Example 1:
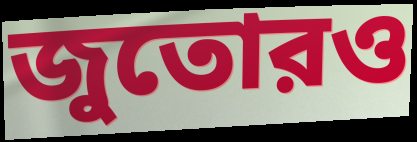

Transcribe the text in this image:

জুতোরও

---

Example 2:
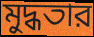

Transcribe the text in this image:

মুদ্ধতার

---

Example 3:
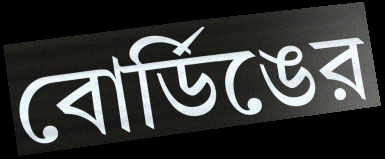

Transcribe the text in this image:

বোর্ডিঙের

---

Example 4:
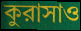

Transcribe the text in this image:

কুরাসাও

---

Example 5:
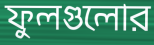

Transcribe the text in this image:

ফুলগুলোর